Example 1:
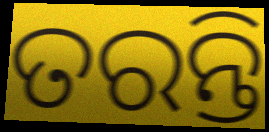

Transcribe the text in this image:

ତରନ୍ତି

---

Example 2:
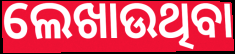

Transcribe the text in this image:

ଲେଖାଉଥିବା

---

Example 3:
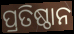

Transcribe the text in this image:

ପ୍ରତିଷ୍ଠାନ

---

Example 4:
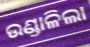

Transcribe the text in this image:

ଉଣ୍ଡାଳିଲା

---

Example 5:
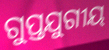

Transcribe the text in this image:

ଗୁପ୍ତଯୁଗୀୟ